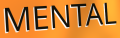
MENTAL